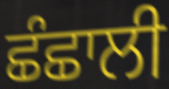
ਛੰਛਾਲੀ